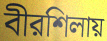
বীরশিলায়